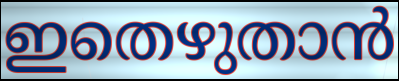
ഇതെഴുതാൻ